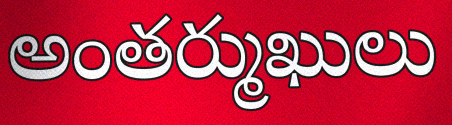
అంతర్ముఖులు